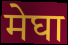
मेघा